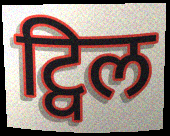
ट्विल